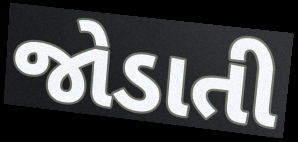
જોડાતી